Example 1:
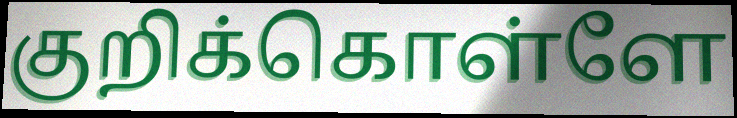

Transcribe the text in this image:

குறிக்கொள்ளே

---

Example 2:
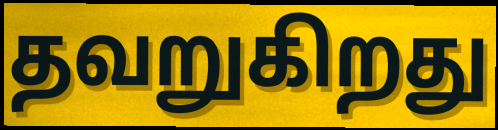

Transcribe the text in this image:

தவறுகிறது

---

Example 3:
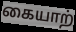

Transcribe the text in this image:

கையாற்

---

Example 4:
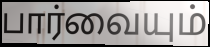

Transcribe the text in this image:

பார்வையும்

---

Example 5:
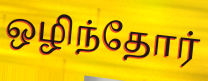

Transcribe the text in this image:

ஒழிந்தோர்